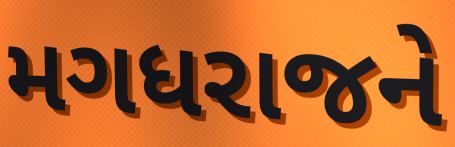
મગધરાજને